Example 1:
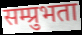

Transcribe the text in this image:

सम्प्रुभता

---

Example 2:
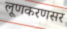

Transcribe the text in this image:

लूणकरणसर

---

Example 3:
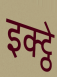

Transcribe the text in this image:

इक्ट्ठे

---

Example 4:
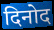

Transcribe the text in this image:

दिनोद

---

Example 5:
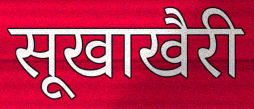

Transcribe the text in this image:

सूखाखैरी